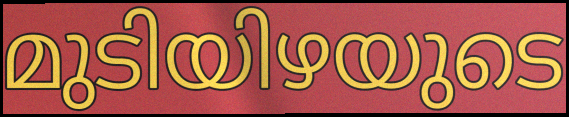
മുടിയിഴയുടെ